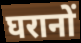
घरानों